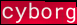
cyborg